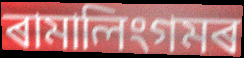
ৰামালিংগমৰ